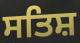
ਸਤਿਸ਼